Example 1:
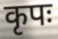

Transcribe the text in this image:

कृपः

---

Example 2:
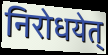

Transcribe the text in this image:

निरोधयेत्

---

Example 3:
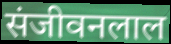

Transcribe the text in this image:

संजीवनलाल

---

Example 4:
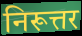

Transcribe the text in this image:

निरूत्तर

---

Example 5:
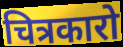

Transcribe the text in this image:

चित्रकारो